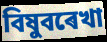
বিষুবৰেখা